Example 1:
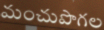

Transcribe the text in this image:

మంచుపొగల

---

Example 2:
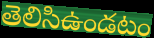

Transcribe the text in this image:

తెలిసిఉండటం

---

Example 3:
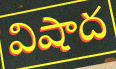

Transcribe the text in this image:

విషాద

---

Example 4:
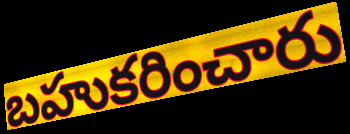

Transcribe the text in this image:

బహుకరించారు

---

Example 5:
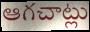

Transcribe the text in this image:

ఆగచాట్లు